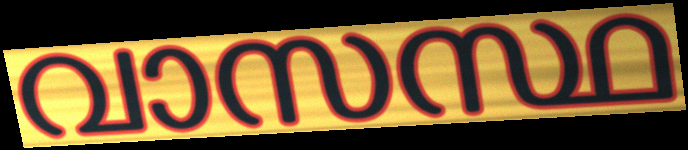
വാസസ്ഥ